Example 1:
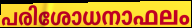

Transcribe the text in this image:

പരിശോധനാഫലം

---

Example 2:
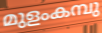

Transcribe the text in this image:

മുളംകമ്പു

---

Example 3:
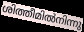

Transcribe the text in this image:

ശിത്തീമിൽനിന്നു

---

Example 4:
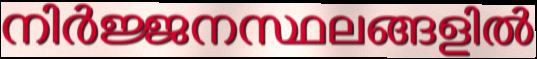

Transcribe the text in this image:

നിർജ്ജനസ്ഥലങ്ങളിൽ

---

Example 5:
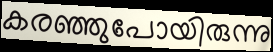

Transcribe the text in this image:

കരഞ്ഞുപോയിരുന്നു